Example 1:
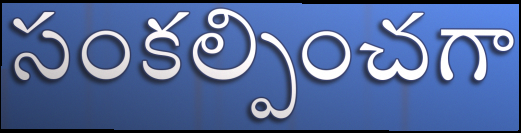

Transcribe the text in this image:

సంకల్పించగా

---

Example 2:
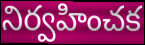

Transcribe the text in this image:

నిర్వహించక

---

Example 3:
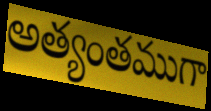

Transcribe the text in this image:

అత్యంతముగా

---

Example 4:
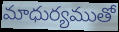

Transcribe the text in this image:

మాధుర్యముతో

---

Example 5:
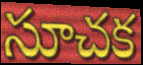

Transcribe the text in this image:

సూచక